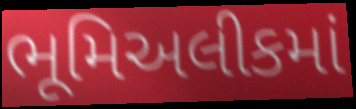
ભૂમિઅલીકમાં